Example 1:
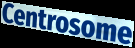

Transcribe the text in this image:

Centrosome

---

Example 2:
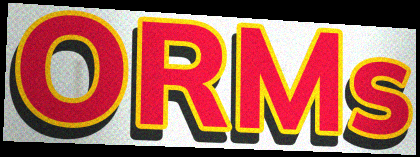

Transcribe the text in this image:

ORMs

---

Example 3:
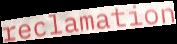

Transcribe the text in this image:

reclamation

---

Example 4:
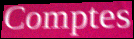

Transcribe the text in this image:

Comptes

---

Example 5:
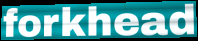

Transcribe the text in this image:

forkhead